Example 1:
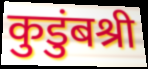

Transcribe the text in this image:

कुडुंबश्री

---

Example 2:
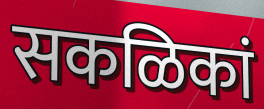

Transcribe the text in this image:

सकळिकां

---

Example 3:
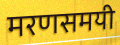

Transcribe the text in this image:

मरणसमयी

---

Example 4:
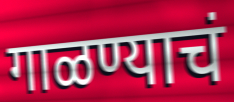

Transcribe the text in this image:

गाळण्याचं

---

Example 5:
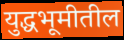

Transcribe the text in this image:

युद्धभूमीतील